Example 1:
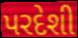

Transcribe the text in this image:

પરદેશી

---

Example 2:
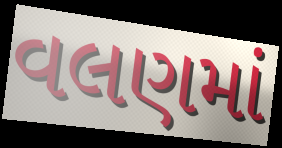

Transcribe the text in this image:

વલણમાં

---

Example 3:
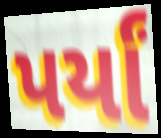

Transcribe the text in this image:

પર્યાં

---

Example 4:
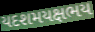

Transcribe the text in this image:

યદશમયક્ષભય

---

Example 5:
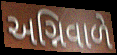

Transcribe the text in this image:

અગ્નિવાળે